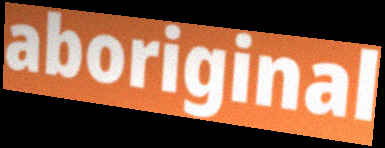
aboriginal